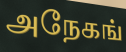
அநேகங்